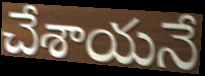
చేశాయనే